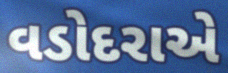
વડોદરાએ